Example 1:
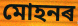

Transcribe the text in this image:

মোহনৰ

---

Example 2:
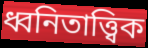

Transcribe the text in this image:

ধ্বনিতাত্ত্বিক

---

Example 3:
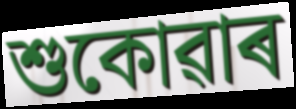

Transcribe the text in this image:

শুকোৱাৰ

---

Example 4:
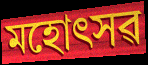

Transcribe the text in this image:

মহোৎসৱ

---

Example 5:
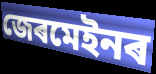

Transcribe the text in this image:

জেৰমেইনৰ